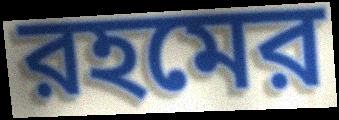
রহমের